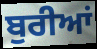
ਬੁਰੀਆਂ